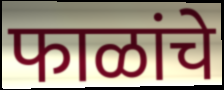
फाळांचे